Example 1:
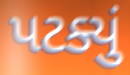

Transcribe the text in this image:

પટક્યું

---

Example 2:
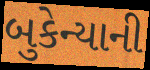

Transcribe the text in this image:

બુકેન્યાની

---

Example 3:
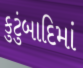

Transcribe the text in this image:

કુટુંબાદિમાં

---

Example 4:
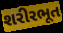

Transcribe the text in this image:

શરીરભૂત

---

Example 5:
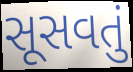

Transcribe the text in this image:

સૂસવતું